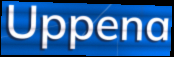
Uppena